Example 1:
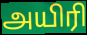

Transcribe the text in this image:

அயிரி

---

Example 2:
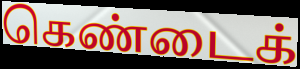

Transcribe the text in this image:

கெண்டைக்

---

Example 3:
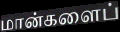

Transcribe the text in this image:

மான்களைப்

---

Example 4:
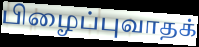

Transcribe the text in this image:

பிழைப்புவாதக்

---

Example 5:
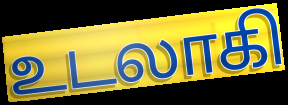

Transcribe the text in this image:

உடலாகி